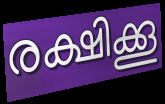
രക്ഷിക്കൂ